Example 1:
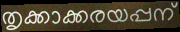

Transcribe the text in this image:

തൃക്കാക്കരയപ്പന്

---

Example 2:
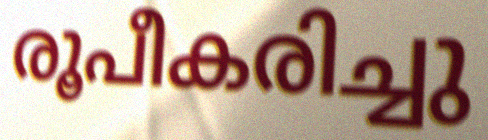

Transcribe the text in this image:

രൂപീകരിച്ചു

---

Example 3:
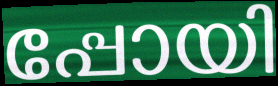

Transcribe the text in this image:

പ്പോയി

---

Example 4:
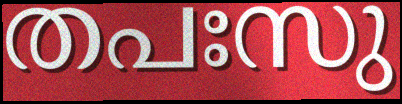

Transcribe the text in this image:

തപഃസു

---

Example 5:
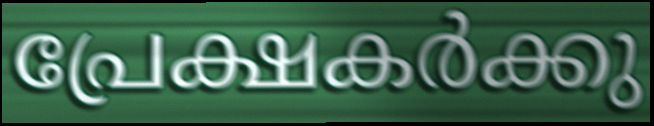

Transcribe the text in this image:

പ്രേക്ഷകർക്കു